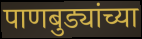
पाणबुड्यांच्या